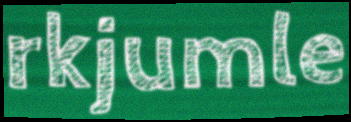
rkjumle